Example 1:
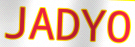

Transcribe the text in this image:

JADYO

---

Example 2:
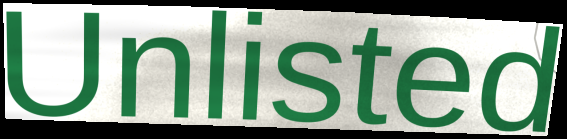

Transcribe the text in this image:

Unlisted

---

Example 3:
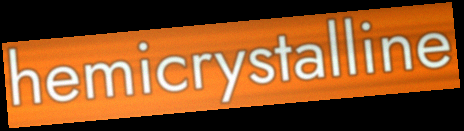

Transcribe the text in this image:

hemicrystalline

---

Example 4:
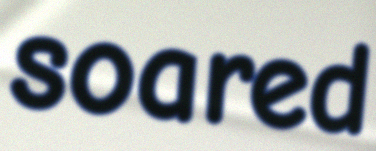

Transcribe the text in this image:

soared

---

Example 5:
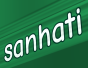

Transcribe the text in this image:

sanhati